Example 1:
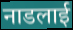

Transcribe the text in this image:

नाडलाई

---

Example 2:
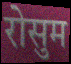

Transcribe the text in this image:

रोसुम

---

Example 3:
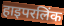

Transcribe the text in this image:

हाइपरलिंक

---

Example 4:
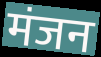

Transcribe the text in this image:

मंजन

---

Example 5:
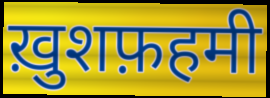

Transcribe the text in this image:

ख़ुशफ़हमी